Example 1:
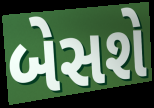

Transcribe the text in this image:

બેસશે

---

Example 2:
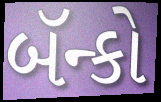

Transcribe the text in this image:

બૅન્કો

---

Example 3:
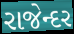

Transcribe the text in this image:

રાજેન્દર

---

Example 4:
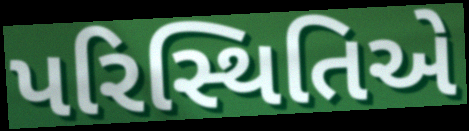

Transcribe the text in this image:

પરિસ્થિતિએ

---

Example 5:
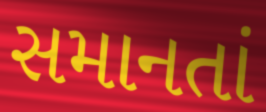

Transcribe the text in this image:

સમાનતાં